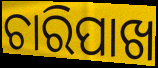
ଚାରିପାଖ